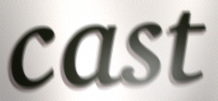
cast